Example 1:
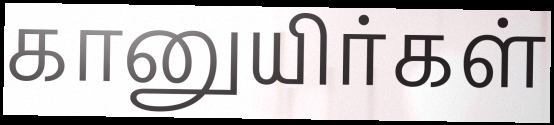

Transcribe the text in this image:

கானுயிர்கள்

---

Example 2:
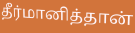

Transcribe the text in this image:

தீர்மானித்தான்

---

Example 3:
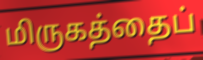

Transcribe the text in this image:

மிருகத்தைப்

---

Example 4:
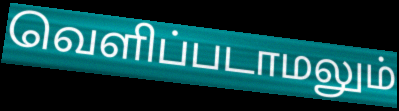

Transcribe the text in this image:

வெளிப்படாமலும்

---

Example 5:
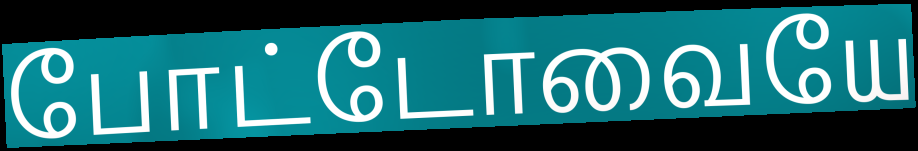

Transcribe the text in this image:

போட்டோவையே